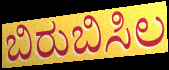
ಬಿರುಬಿಸಿಲ